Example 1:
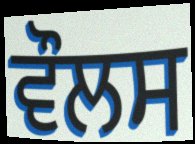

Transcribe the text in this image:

ਵੌਲਸ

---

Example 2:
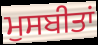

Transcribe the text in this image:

ਮੁਸਬੀਤਾਂ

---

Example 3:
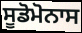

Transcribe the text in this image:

ਸੂਡੋਮੋਨਾਸ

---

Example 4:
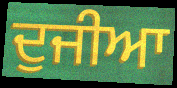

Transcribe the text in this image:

ਦੁਜੀਆ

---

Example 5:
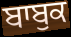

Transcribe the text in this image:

ਬਾਬੁਕ